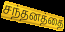
சந்தனத்தை